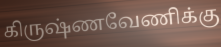
கிருஷ்ணவேணிக்கு